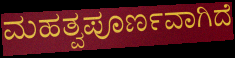
ಮಹತ್ವಪೂರ್ಣವಾಗಿದೆ